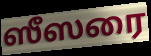
ஸீஸரை